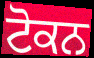
ਟੋਕਨ